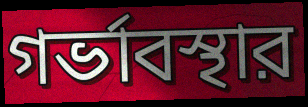
গর্ভাবস্থার